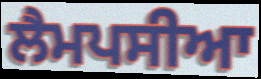
ਲੈਮਪਸੀਆ